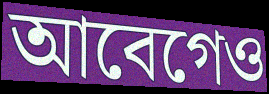
আবেগেও